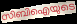
സിബിഐയുടെ